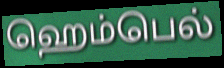
ஹெம்பெல்